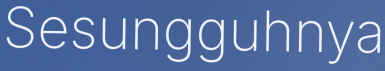
Sesungguhnya